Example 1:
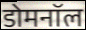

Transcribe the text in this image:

डोमनॉल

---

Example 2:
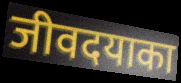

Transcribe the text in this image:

जीवदयाका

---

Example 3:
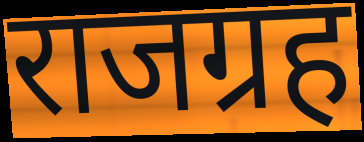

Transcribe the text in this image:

राजग्रह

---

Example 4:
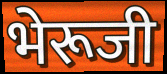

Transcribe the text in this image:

भेरूजी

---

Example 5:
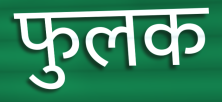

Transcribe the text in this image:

फुलक